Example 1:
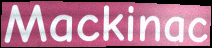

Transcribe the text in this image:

Mackinac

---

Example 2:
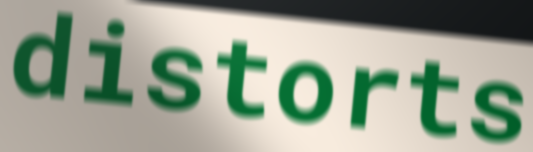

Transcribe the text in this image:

distorts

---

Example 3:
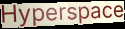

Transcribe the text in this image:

Hyperspace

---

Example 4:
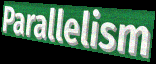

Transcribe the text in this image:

Parallelism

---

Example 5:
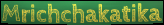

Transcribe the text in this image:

Mrichchakatika